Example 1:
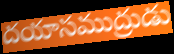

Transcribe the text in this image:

దయాసముద్రుడు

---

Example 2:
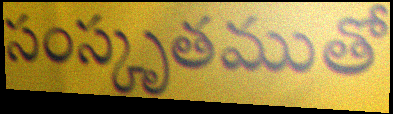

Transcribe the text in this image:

సంస్కృతముతో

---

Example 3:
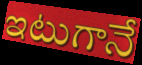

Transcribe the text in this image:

ఇటుగానే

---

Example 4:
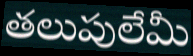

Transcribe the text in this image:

తలుపులేమీ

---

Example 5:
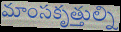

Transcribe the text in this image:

మాంసకృత్తుల్ని